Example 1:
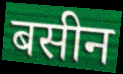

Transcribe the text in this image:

बसीन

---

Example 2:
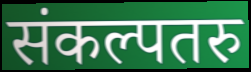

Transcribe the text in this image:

संकल्पतरु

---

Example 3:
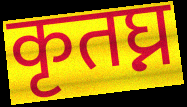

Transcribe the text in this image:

कृतघ्न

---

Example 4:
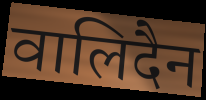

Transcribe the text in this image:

वालिदैन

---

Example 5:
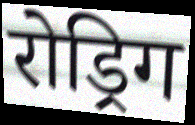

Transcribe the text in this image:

रोड्रिग